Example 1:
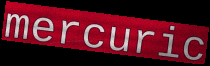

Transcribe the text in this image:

mercuric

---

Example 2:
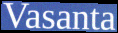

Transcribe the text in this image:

Vasanta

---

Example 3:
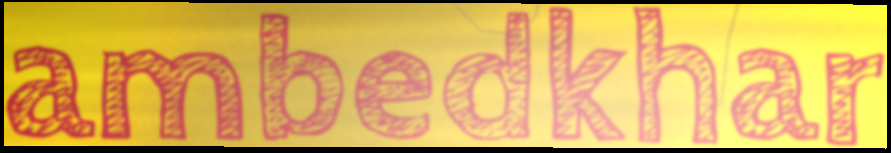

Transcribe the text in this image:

ambedkhar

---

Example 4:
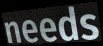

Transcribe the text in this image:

needs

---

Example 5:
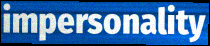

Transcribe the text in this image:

impersonality